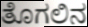
ತೊಗಲಿನ